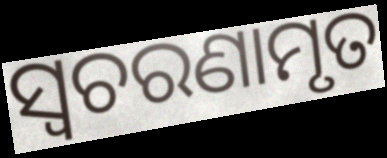
ସ୍ଵଚରଣାମୃତ